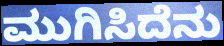
ಮುಗಿಸಿದೆನು